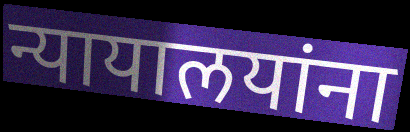
न्यायालयांना